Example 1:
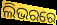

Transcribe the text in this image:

ଲିଭରରେ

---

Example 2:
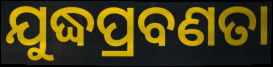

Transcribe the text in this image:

ଯୁଦ୍ଧପ୍ରବଣତା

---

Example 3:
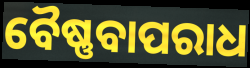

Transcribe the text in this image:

ବୈଷ୍ଣବାପରାଧ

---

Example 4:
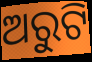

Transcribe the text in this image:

ଅରୁଟି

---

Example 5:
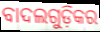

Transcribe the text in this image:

ବାଦଲଗୁଡ଼ିକର